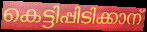
കെട്ടിപ്പിടിക്കാന്